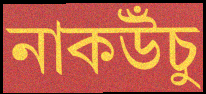
নাকউঁচু